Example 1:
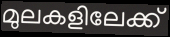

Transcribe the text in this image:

മുലകളിലേക്ക്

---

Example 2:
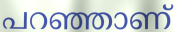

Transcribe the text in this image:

പറഞ്ഞാണ്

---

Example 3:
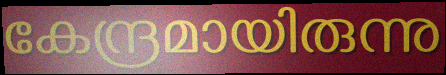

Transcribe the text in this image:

കേന്ദ്രമായിരുന്നു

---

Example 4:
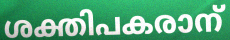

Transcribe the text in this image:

ശക്തിപകരാന്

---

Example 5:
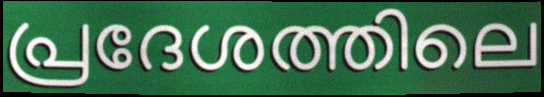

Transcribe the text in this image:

പ്രദേശത്തിലെ